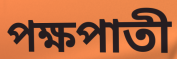
পক্ষপাতী